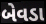
બેવડા